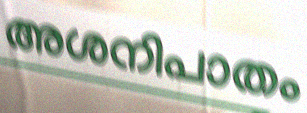
അശനിപാതം